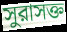
সুরাসক্ত